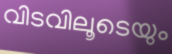
വിടവിലൂടെയും